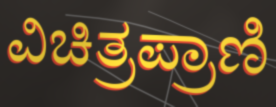
ವಿಚಿತ್ರಪ್ರಾಣಿ